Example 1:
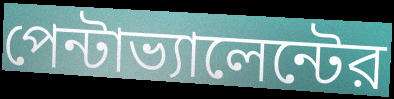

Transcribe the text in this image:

পেন্টাভ্যালেন্টের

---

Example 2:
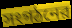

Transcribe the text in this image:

সংগঠনের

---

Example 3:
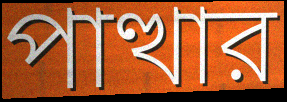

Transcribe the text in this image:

পাত্থার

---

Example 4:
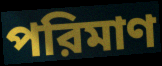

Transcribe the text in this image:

পরিমাণ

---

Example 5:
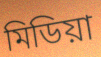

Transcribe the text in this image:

মিডিয়া